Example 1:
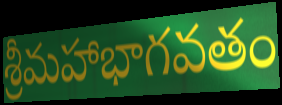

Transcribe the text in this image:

శ్రీమహాభాగవతం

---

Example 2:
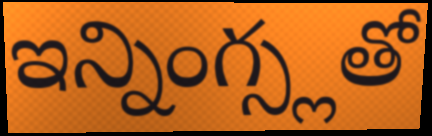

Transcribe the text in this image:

ఇన్నింగ్స్లతో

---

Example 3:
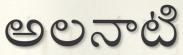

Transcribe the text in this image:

అలనాటి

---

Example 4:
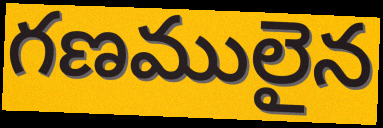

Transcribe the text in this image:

గణములైన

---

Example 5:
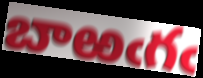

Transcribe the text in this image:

బాఱఁగఁ